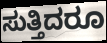
ಸುತ್ತಿದರೂ